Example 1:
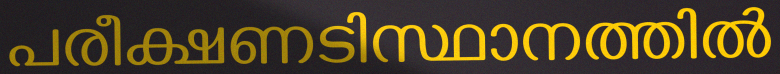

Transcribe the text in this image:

പരീക്ഷണടിസ്ഥാനത്തിൽ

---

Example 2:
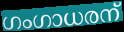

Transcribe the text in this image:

ഗംഗാധരന്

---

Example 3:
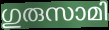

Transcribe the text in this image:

ഗുരുസാമി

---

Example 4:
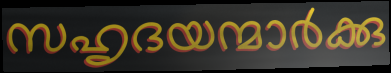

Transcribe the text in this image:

സഹൃദയന്മാർക്കു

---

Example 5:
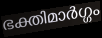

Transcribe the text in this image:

ഭക്തിമാർഗ്ഗം